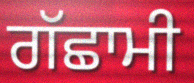
ਗੱਛਾਮੀ